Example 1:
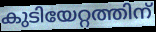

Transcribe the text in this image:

കുടിയേറ്റത്തിന്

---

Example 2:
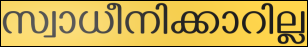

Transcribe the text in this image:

സ്വാധീനിക്കാറില്ല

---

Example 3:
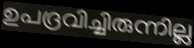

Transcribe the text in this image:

ഉപദ്രവിച്ചിരുന്നില്ല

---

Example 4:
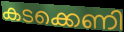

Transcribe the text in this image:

കടക്കെണി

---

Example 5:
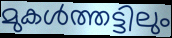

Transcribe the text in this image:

മുകൾത്തട്ടിലും